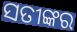
ସତୀଙ୍କର